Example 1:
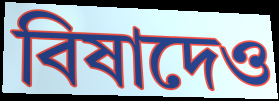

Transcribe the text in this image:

বিষাদেও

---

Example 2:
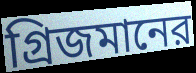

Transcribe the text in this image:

গ্রিজমানের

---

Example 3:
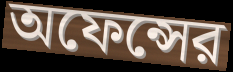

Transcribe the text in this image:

অফেন্সের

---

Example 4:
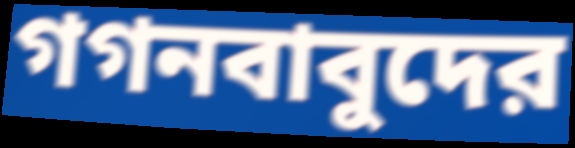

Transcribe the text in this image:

গগনবাবুদের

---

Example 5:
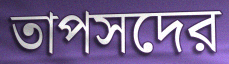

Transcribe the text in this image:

তাপসদের